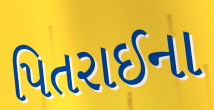
પિતરાઈના